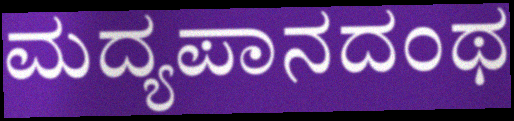
ಮದ್ಯಪಾನದಂಥ